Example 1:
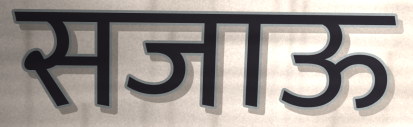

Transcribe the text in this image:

सजाऊ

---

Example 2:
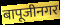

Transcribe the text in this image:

बापूजीनगर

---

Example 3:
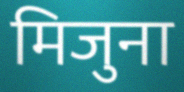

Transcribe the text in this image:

मिजुना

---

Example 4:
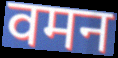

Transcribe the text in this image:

वमन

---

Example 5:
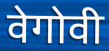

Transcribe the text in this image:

वेगोवी